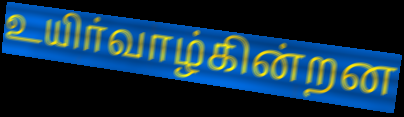
உயிர்வாழ்கின்றன